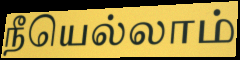
நீயெல்லாம்